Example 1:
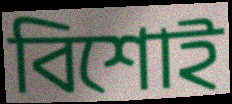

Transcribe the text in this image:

বিশোই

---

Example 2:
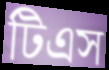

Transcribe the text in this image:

টিএস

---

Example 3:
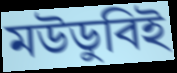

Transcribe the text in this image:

মউডুবিই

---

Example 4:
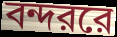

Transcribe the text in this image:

বন্দররে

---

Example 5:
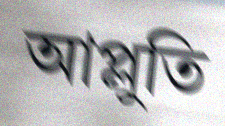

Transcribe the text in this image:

আপ্লুতি